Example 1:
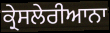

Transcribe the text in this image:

ਕ੍ਰੇਸਲੇਰੀਆਨਾ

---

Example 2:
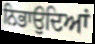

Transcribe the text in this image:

ਨਿਭਾਉਦਿਆਂ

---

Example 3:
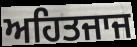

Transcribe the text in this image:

ਅਹਿਤਜਾਜ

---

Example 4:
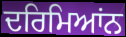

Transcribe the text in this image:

ਦਰਿਮਿਆਂਨ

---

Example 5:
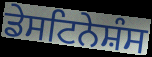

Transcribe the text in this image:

ਡੇਸਟਿਨੇਸ਼ੰਸ